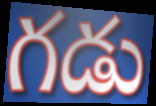
గడు